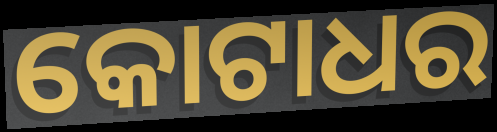
କୋଟାଧର